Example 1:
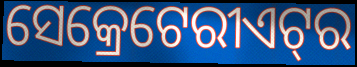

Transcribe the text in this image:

ସେକ୍ରେଟେରୀଏଟ୍‍ର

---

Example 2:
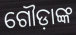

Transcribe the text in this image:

ଗୌଡ଼ାଙ୍କ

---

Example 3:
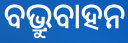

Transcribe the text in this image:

ବଭ୍ରୁବାହନ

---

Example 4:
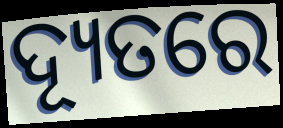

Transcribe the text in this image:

ଦ୍ୟୂତରେ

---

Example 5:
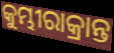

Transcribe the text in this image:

କୁମ୍ଭୀରାକ୍ରାନ୍ତ